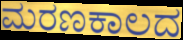
ಮರಣಕಾಲದ